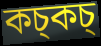
কচ্কচ্